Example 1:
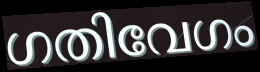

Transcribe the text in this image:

ഗതിവേഗം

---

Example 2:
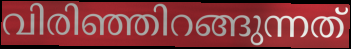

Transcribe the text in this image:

വിരിഞ്ഞിറങ്ങുന്നത്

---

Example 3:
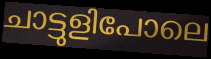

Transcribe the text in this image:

ചാട്ടുളിപോലെ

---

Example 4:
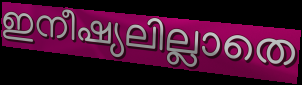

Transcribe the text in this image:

ഇനീഷ്യലില്ലാതെ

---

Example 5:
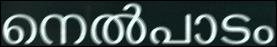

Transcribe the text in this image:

നെൽപാടം